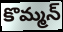
కొమ్మన్